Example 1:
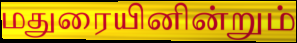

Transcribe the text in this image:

மதுரையினின்றும்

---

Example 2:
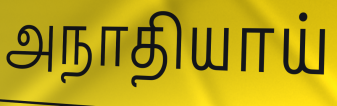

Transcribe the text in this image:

அநாதியாய்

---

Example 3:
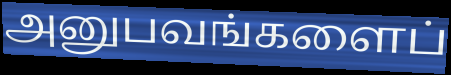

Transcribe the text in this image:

அனுபவங்களைப்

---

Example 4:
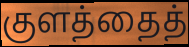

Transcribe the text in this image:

குளத்தைத்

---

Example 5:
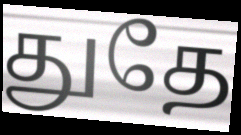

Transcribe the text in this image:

துதே